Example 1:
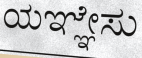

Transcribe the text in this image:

ಯಞ್ಞೇಸು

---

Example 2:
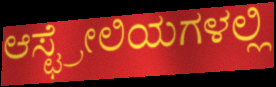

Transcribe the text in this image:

ಆಸ್ಟ್ರೇಲಿಯಗಳಲ್ಲಿ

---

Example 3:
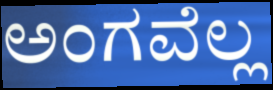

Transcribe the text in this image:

ಅಂಗವೆಲ್ಲ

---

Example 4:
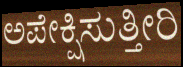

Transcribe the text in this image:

ಅಪೇಕ್ಷಿಸುತ್ತೀರಿ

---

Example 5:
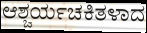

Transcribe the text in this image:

ಆಶ್ಚರ್ಯಚಕಿತಳಾದ